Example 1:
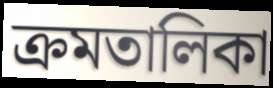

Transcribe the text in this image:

ক্রমতালিকা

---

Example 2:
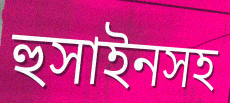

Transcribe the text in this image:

হুসাইনসহ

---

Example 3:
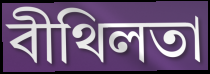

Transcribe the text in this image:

বীথিলতা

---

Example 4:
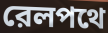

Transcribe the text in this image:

রেলপথে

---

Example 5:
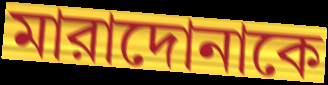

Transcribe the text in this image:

মারাদোনাকে